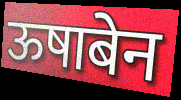
ऊषाबेन